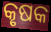
କୃଷକ